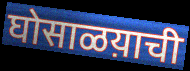
घोसाळय़ाची